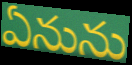
ఏనును